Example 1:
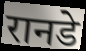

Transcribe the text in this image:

रानडे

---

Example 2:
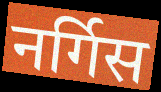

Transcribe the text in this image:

नर्गिस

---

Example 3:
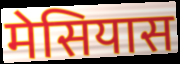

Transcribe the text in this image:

मेसियास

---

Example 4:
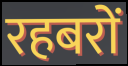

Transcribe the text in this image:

रहबरों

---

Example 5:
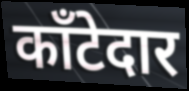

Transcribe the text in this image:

काँटेदार